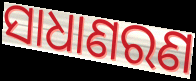
ସାଧାଣରଣ